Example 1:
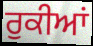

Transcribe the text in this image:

ਰੁਕੀਆਂ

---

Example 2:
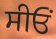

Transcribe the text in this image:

ਸੀਓਂ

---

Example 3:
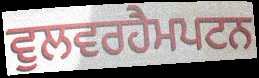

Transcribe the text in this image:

ਵੁਲਵਰਹੈਮਪਟਨ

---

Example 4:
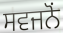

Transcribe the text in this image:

ਸਵਜਨੋਂ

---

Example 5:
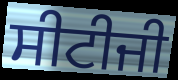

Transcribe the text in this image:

ਸੀਟੀਜੀ